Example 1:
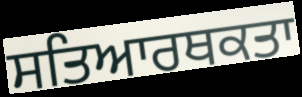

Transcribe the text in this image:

ਸਤਿਆਰਥਕਤਾ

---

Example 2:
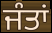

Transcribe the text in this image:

ਜੰਤਾਂ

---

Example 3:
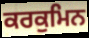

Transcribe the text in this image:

ਕਰਕੁਮਿਨ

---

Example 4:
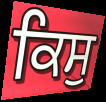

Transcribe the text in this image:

ਕਿਸੁ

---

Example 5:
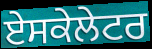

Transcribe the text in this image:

ਏਸਕੇਲੇਟਰ